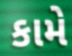
કામે